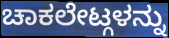
ಚಾಕಲೇಟ್ಗಳನ್ನು